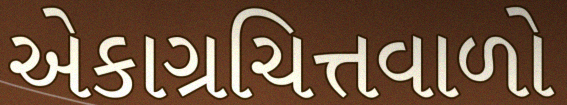
એકાગ્રચિત્તવાળો